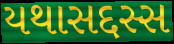
યથાસદ્દસ્સ